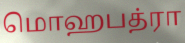
மொஹபத்ரா